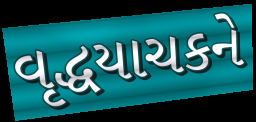
વૃદ્ધયાચકને